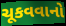
ચૂકવવાનો